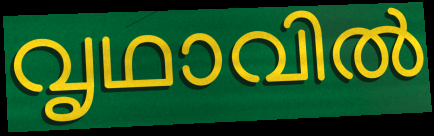
വൃഥാവിൽ